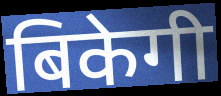
बिकेगी